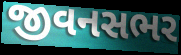
જીવનસભર